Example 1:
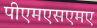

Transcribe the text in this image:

पीएमएसएमए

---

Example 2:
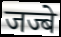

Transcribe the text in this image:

जज्बे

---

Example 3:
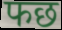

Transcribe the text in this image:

फछ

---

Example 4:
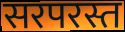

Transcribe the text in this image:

सरपरस्त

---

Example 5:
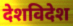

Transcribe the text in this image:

देशविदेश